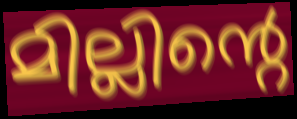
മില്ലിന്റെ